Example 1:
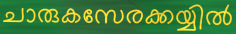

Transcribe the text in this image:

ചാരുകസേരക്കയ്യിൽ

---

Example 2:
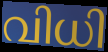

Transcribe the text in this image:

വിധി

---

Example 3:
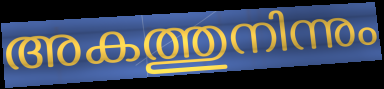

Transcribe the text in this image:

അകത്തുനിന്നും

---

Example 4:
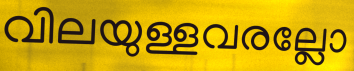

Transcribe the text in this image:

വിലയുള്ളവരല്ലോ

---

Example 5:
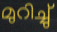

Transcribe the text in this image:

മുറിച്ചു്